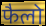
फैलो